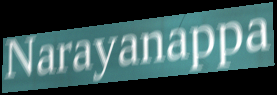
Narayanappa